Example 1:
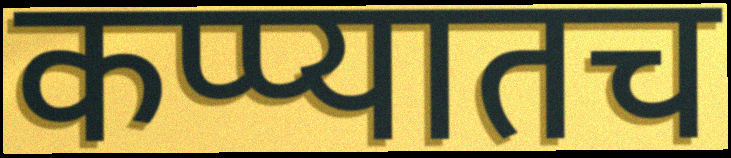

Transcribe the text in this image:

कप्प्यातच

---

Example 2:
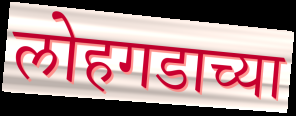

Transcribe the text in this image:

लोहगडाच्या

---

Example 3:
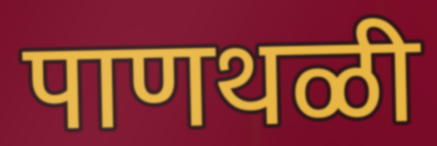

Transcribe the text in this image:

पाणथळी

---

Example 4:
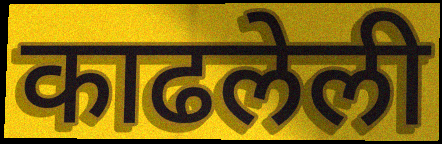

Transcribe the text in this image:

काढलेली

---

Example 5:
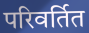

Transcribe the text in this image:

परिवर्तित